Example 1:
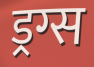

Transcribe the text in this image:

ड्रग्स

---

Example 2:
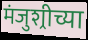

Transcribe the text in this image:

मंजुश्रीच्या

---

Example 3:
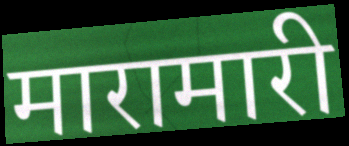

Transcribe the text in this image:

मारामारी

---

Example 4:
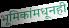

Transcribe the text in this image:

भूमिकांमधूनही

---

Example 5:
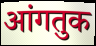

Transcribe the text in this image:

आंगतुक